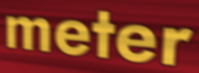
meter